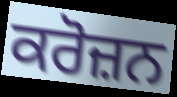
ਕਰੋਜ਼ਨ